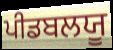
ਪੀਡਬਲਯੂ